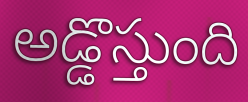
అడ్డొస్తుంది